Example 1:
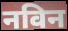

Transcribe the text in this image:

नविन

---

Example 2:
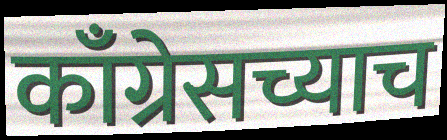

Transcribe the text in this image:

काँग्रेसच्याच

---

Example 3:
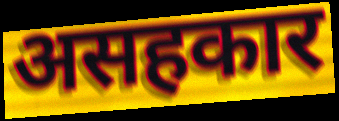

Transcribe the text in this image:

असहकार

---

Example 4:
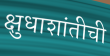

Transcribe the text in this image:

क्षुधाशांतीची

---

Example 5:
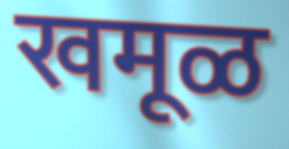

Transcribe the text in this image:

खमूळ